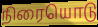
நிரையொடு